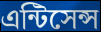
এন্টিসেন্স